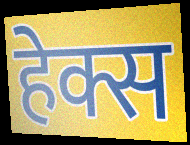
हेक्स